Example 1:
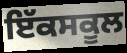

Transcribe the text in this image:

ਇੱਕਸਕੂਲ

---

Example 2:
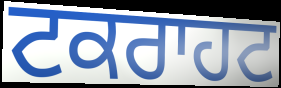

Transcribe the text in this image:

ਟਕਰਾਹਟ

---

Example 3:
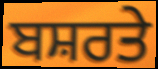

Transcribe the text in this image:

ਬਸ਼ਰਤੇ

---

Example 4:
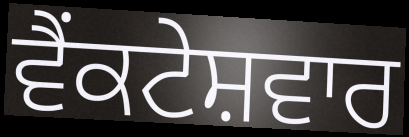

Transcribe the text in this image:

ਵੈਂਕਟੇਸ਼ਵਾਰ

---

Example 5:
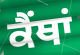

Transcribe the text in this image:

ਕੈਂਥਾਂ